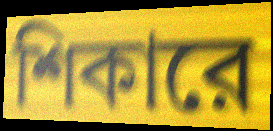
শিকারে